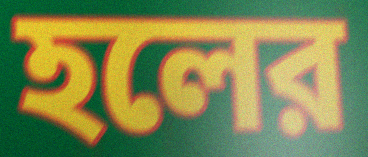
হলের